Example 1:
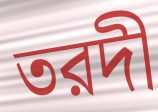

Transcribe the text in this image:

তরদী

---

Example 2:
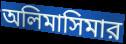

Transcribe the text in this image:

অলিমাসিমার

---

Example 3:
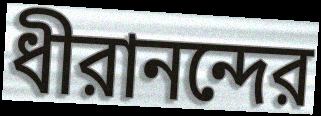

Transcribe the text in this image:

ধীরানন্দের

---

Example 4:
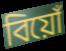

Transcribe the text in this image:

বিয়োঁ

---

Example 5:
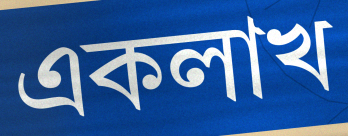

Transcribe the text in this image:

একলাখ